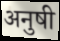
अनुषी